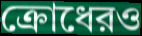
ক্রোধেরও